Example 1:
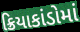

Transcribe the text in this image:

ક્રિયાકાંડોમાં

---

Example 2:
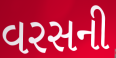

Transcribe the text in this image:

વરસની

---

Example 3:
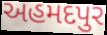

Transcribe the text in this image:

અહમદપુર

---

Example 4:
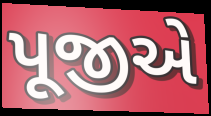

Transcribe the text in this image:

પૂજીએ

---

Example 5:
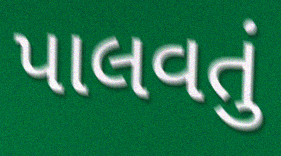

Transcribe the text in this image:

પાલવતું